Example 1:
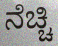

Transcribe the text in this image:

ನೆಚ್ಚಿ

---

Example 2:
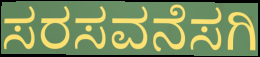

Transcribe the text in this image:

ಸರಸವನೆಸಗಿ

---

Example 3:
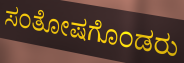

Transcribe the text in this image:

ಸಂತೋಷಗೊಂಡರು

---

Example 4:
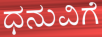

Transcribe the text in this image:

ಧನುವಿಗೆ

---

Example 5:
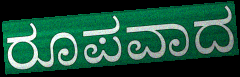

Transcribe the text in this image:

ರೂಪವಾದ